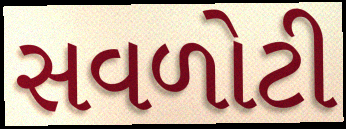
સવળોટી